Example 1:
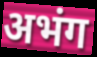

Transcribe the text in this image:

अभंग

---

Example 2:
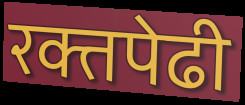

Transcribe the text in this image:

रक्तपेढी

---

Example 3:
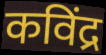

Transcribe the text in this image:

कविंद्र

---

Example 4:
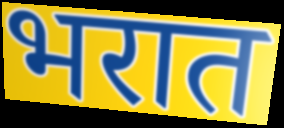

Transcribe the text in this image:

भरात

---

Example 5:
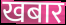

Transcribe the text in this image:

खबार